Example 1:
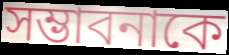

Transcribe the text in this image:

সম্ভাবনাকে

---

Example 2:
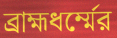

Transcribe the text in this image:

ব্রাহ্মধর্ম্মের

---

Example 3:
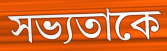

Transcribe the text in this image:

সভ্যতাকে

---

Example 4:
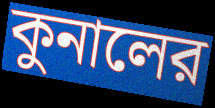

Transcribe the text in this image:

কুনালের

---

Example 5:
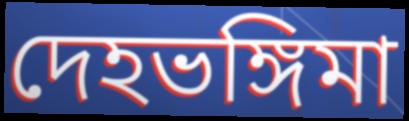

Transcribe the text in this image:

দেহভঙ্গিমা